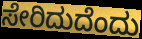
ಸೇರಿದುದೆಂದು